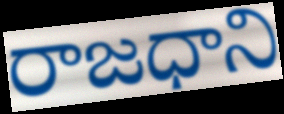
రాజధాని